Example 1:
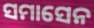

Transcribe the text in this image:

ସମାସେନ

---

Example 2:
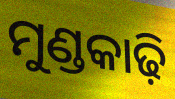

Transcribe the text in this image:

ମୁଣ୍ଡକାଢ଼ି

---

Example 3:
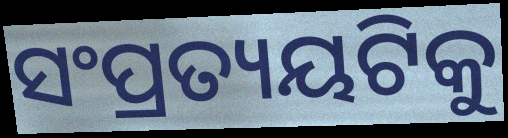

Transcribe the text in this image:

ସଂପ୍ରତ୍ୟୟଟିକୁ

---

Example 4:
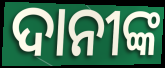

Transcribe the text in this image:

ଦାନୀଙ୍କ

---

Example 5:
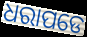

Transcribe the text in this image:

ଧରାପଡେ